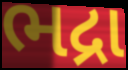
ભદ્રા